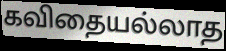
கவிதையல்லாத